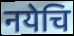
नयेचि